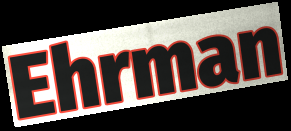
Ehrman